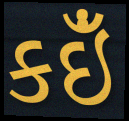
કઇઁં